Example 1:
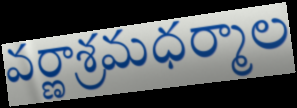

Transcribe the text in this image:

వర్ణాశ్రమధర్మాల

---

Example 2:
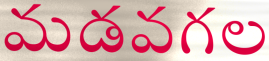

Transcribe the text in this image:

మడవగల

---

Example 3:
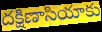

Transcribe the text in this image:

దక్షిణాసియాకు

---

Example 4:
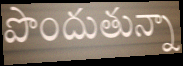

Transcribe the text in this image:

పొందుతున్నా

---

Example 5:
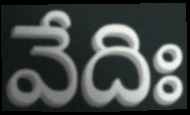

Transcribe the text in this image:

వేదిః